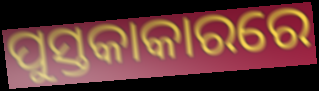
ପୁସ୍ତକାକାରରେ